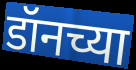
डॉनच्या